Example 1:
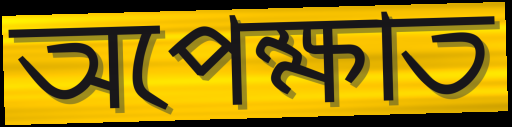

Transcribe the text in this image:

অপেক্ষাত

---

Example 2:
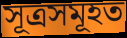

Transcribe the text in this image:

সূত্ৰসমূহত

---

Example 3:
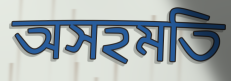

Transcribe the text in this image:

অসহমতি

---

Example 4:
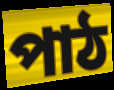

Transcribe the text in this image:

পাঠ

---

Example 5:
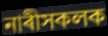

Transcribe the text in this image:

নাৰীসকলক